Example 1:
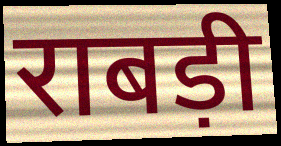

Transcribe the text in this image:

राबड़ी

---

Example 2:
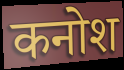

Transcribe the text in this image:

कनोश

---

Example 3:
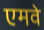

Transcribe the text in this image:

एमवे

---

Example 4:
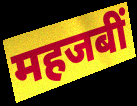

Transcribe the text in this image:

महजबीं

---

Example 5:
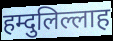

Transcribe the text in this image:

हम्दुलिल्लाह